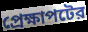
প্রেক্ষাপটের